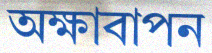
অক্ষাবাপন